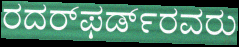
ರದರ್‌ಫರ್ಡ್‌ರವರು